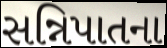
સન્નિપાતના